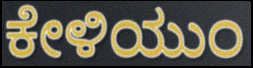
ಕೇಳಿಯುಂ